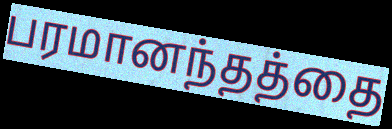
பரமானந்தத்தை